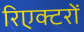
रिएक्टरों